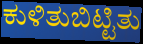
ಕುಳಿತುಬಿಟ್ಟಿತು